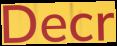
Decr